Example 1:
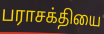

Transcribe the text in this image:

பராசக்தியை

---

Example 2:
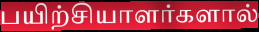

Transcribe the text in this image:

பயிற்சியாளர்களால்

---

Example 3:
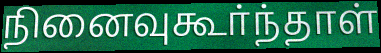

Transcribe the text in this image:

நினைவுகூர்ந்தாள்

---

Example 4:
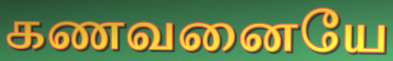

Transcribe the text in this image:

கணவனையே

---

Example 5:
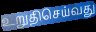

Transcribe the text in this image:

உறுதிசெய்வது